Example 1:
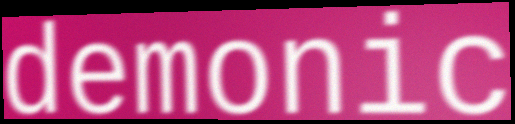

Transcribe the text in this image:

demonic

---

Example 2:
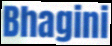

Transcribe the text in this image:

Bhagini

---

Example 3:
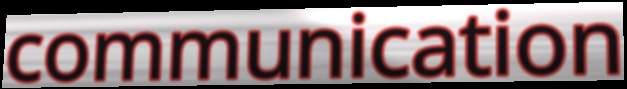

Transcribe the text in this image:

communication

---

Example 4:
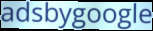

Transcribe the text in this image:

adsbygoogle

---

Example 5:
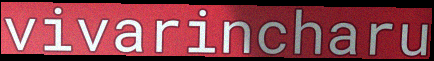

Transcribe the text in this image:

vivarincharu